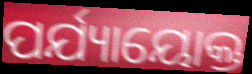
ପର୍ଯ୍ୟାୟୋକ୍ତ